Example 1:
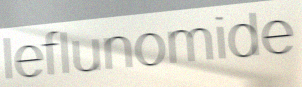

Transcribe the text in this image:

leflunomide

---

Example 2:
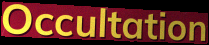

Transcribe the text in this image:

Occultation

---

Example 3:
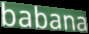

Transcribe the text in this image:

babana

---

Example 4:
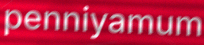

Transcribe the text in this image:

penniyamum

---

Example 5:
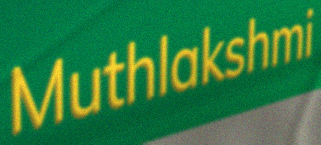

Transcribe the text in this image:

Muthlakshmi